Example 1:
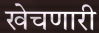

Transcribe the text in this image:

खेचणारी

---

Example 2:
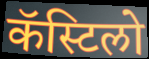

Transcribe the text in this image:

कॅस्टिलो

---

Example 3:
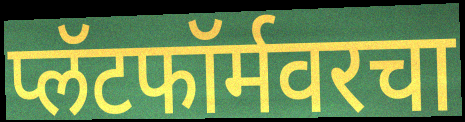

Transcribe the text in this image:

प्लॅटफॉर्मवरचा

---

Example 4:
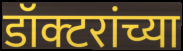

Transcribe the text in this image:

डॉक्‍टरांच्या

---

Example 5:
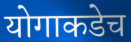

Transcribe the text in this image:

योगाकडेच